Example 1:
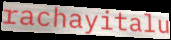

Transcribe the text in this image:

rachayitalu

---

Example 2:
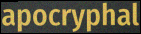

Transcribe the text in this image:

apocryphal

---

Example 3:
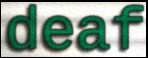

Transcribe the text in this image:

deaf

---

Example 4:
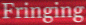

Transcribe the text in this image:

Fringing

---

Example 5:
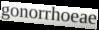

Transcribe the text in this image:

gonorrhoeae